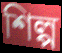
শিল্প